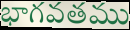
భాగవతము